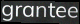
grantee